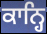
ਕਾਨ੍ਹਿ